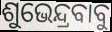
ଶୁଭେନ୍ଦ୍ରବାବୁ